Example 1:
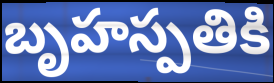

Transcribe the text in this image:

బృహస్పతికి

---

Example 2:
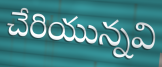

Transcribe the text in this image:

చేరియున్నవి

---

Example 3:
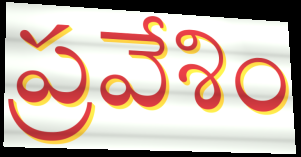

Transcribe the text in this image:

ప్రవేశిం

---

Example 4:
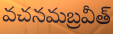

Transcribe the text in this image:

వచనమబ్రవీత్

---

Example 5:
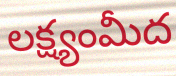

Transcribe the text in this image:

లక్ష్యంమీద